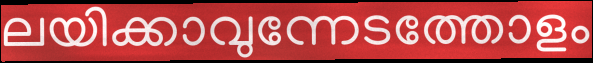
ലയിക്കാവുന്നേടത്തോളം